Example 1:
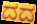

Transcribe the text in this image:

ದದ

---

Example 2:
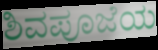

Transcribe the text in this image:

ಶಿವಪೂಜೆಯ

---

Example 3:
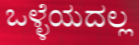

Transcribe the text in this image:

ಒಳ್ಳೆಯದಲ್ಲ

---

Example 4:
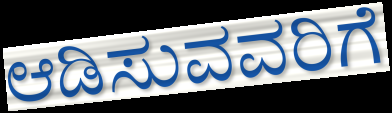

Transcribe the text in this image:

ಆಡಿಸುವವರಿಗೆ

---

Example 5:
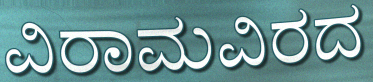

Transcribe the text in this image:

ವಿರಾಮವಿರದ